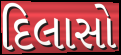
દિલાસો